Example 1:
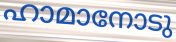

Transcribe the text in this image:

ഹാമാനോടു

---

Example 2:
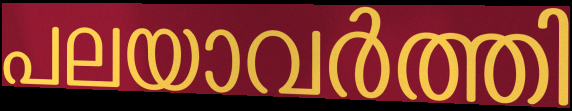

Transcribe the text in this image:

പലയാവർത്തി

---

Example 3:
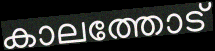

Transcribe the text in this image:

കാലത്തോട്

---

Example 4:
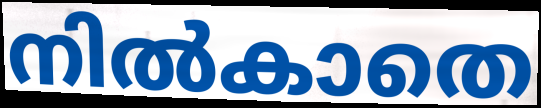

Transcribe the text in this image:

നിൽകാതെ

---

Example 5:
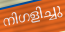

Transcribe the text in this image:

നിഗളിച്ചു